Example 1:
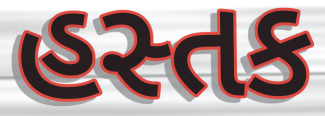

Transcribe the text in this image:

હસ્તક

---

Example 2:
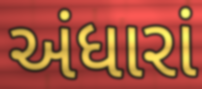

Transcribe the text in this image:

અંધારાં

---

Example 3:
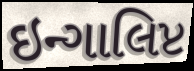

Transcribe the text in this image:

ઇન્ગાલિપ્ટ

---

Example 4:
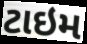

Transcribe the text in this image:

ટાઇમ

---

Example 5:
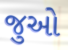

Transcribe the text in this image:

જુઓ